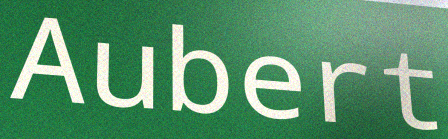
Aubert